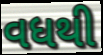
વધથી